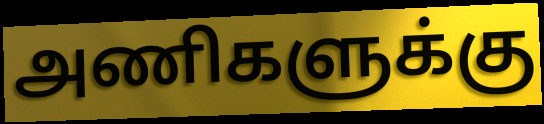
அணிகளுக்கு